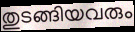
തുടങ്ങിയവരും